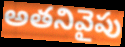
అతనివైపు